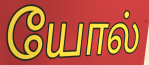
யோல்